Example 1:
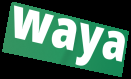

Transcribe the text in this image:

waya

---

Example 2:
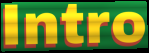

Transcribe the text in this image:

Intro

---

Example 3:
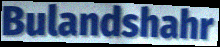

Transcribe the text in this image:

Bulandshahr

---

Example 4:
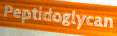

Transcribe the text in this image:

Peptidoglycan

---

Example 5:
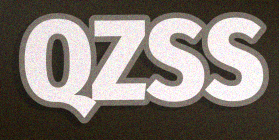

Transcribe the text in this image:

QZSS